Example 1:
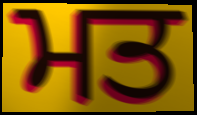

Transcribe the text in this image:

ਮਤ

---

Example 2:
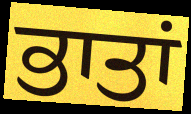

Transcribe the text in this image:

ਭਾਤਾਂ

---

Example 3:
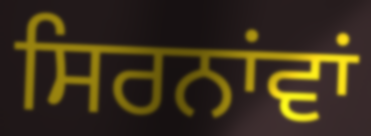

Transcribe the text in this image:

ਸਿਰਨਾਂਵਾਂ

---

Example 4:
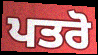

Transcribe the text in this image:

ਪਤਰੋ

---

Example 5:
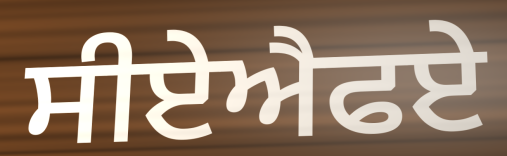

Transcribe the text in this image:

ਸੀਏਐਫਏ